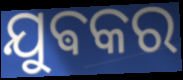
ଯୁଵକର